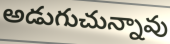
అడుగుచున్నావు